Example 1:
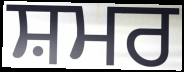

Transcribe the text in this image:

ਸ਼ਮਰ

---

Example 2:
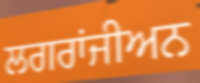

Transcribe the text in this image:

ਲਗਰਾਂਜੀਅਨ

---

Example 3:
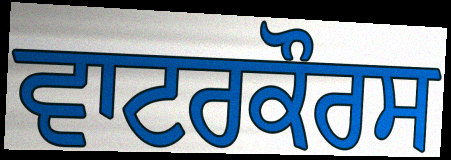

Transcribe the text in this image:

ਵਾਟਰਕੌਰਸ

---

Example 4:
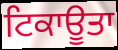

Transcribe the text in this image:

ਟਿਕਾਊਤਾ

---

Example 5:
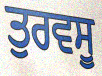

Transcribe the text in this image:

ਤੁਰਵਸੂ